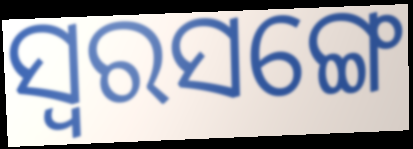
ସ୍ୱରସଙ୍ଗେ